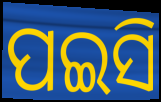
ପଇସି